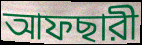
আফছারী